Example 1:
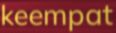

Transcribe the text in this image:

keempat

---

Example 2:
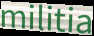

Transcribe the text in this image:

militia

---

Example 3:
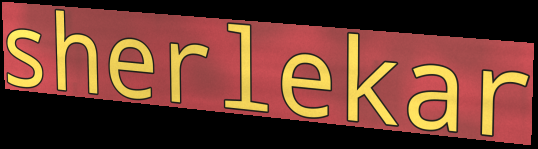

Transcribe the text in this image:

sherlekar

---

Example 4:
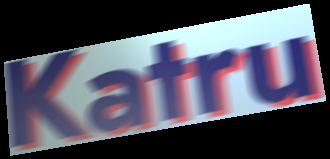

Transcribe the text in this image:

Katru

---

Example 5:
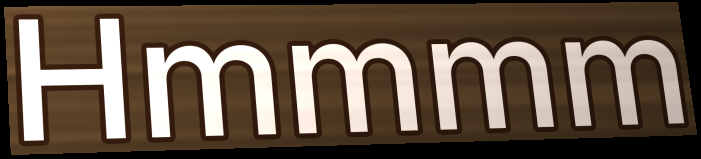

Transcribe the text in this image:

Hmmmm